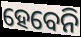
ହେବେନି